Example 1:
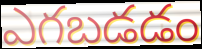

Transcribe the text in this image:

ఎగబడడం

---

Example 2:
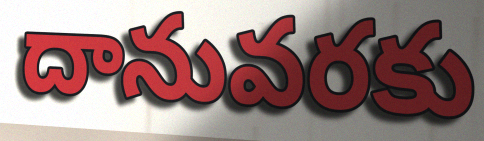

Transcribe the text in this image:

దానువరకు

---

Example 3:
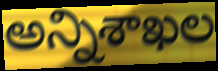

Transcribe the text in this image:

అన్నిశాఖల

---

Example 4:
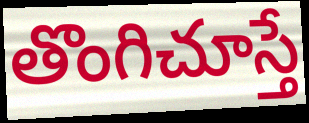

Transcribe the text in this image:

తొంగిచూస్తే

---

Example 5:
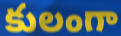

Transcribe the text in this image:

కులంగా